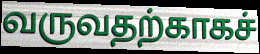
வருவதற்காகச்